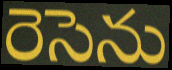
రెసెను